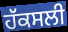
ਹੱਕਸਲੀ